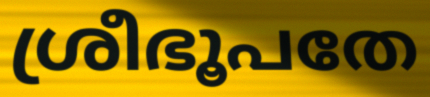
ശ്രീഭൂപതേ